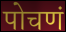
पोचणं